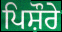
ਪਿਸ਼ੌਰੇ